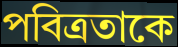
পবিত্রতাকে